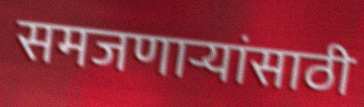
समजणाऱ्यांसाठी